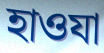
হাওযা